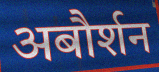
अबौर्शन